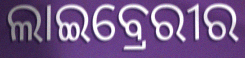
ଲାଇବ୍ରେରୀର